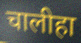
चालीहा